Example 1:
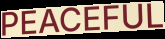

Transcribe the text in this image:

PEACEFUL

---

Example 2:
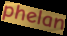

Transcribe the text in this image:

phelan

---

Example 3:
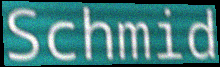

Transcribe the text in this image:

Schmid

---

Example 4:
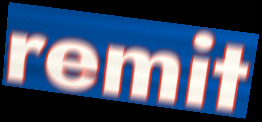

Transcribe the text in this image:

remit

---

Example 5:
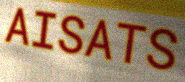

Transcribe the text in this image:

AISATS